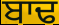
ਬਾਢ